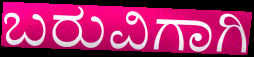
ಬರುವಿಗಾಗಿ